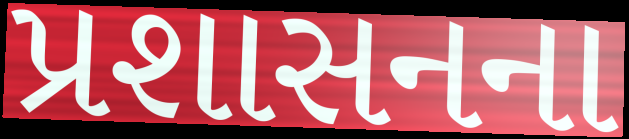
પ્રશાસનના